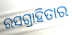
ରସଗ୍ରାହିତାର